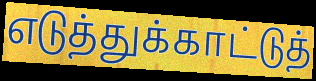
எடுத்துக்காட்டுத்